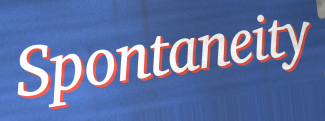
Spontaneity